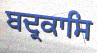
ਬਦ੍ਰਕਾਸਿ